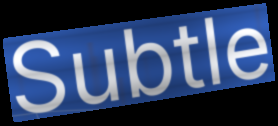
Subtle